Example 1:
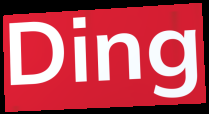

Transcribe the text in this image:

Ding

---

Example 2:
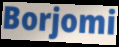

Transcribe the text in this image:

Borjomi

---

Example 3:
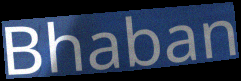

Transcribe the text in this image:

Bhaban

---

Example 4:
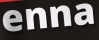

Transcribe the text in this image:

enna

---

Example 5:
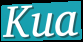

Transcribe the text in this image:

Kua